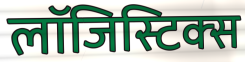
लॉजिस्टिक्‍स